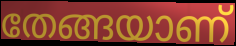
തേങ്ങയാണ്